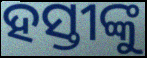
ହସ୍ତୀଙ୍କୁ